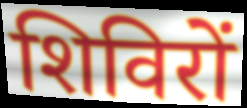
शिविरों